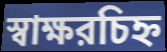
স্বাক্ষরচিহ্ন